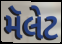
મૅલેટ